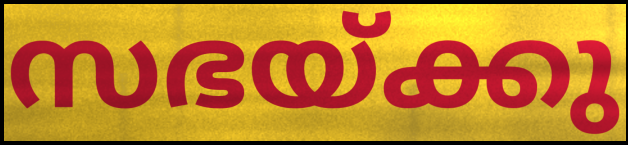
സഭയ്ക്കു